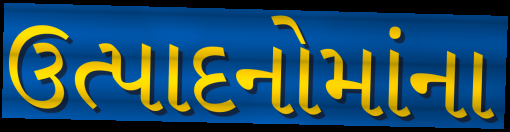
ઉત્પાદનોમાંના